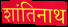
शांतिनाथ